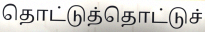
தொட்டுத்தொட்டுச்